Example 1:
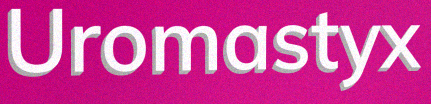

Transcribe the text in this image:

Uromastyx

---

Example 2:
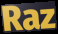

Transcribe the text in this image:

Raz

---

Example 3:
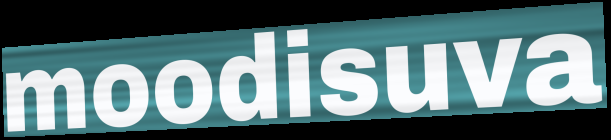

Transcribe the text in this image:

moodisuva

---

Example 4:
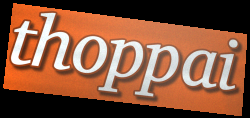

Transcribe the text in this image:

thoppai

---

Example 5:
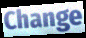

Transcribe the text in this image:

Change